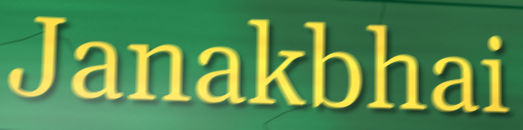
Janakbhai